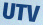
UTV